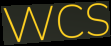
WCS